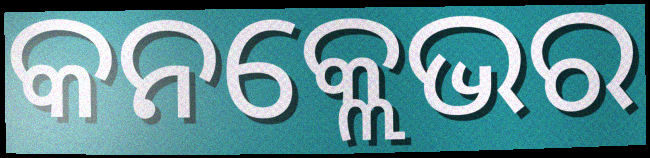
କନକ୍ଲେଭର